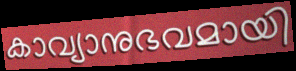
കാവ്യാനുഭവമായി